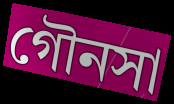
গৌনসা